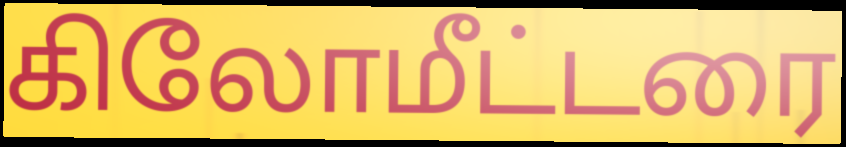
கிலோமீட்டரை